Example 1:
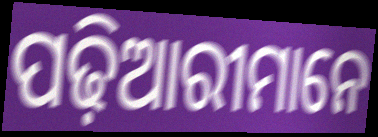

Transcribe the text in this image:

ପଢ଼ିଆରୀମାନେ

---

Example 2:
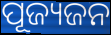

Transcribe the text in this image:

ପୂଜ୍ୟଜନ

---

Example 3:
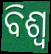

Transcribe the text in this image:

ବିଶ୍ୱ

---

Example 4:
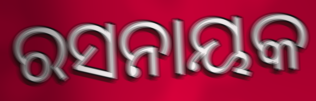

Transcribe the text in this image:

ରସନାୟକ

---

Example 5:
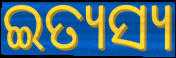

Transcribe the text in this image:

ଇତ୍ୟସ୍ୟ